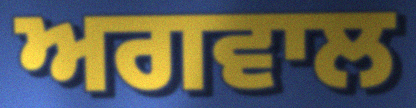
ਅਗਵਾਲ